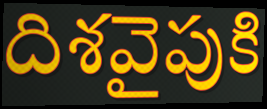
దిశవైపుకి